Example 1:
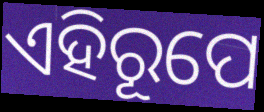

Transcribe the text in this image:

ଏହିରୂପେ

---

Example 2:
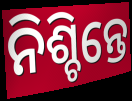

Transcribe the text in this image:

ନିଶ୍ଚିନ୍ତେ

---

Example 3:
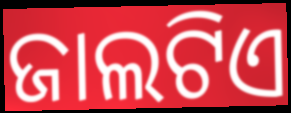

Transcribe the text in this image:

ଜାଲଟିଏ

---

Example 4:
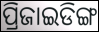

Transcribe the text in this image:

ପ୍ରିଜାଇଡିଙ୍ଗ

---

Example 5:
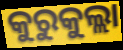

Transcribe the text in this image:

କୁରୁକୁଲ୍ଲା